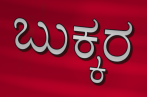
ಬುಕ್ಕರ